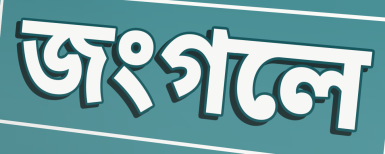
জংগলে